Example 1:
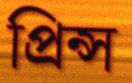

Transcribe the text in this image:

প্রিন্স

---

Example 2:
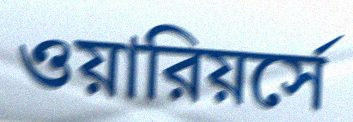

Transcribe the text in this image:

ওয়ারিয়র্সে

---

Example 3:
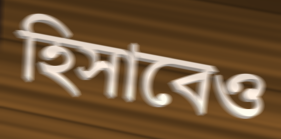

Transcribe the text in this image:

হিসাবেও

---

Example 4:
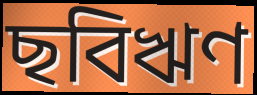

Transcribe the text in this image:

ছবিঋণ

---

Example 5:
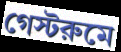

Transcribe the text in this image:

গেস্টরুমে